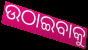
ଉଠାଇବାକୁ